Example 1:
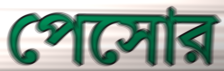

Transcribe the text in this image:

পেসোর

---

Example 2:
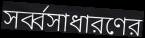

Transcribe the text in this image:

সর্ব্বসাধারণের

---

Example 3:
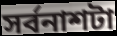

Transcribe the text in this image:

সর্বনাশটা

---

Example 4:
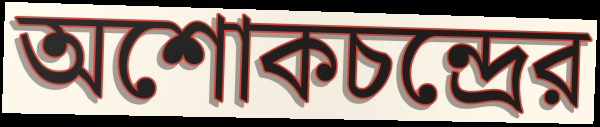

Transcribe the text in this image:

অশোকচন্দ্রের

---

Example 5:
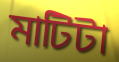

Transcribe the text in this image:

মাটিটা